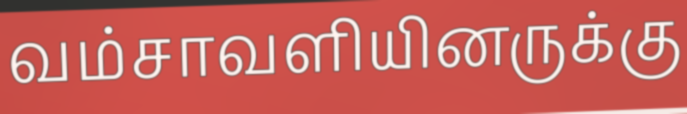
வம்சாவளியினருக்கு